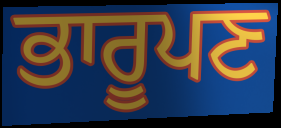
ਭਾਰੂਪਣ